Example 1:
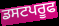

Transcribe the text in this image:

ਡਸਟਪਰੂਫ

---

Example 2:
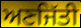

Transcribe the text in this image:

ਅਣਜਿੱਤੀ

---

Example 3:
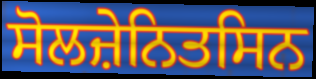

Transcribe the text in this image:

ਸੋਲਜ਼ੇਨਿਤਸਿਨ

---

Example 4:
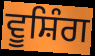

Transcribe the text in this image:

ਵੂਸ਼ਿੰਗ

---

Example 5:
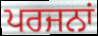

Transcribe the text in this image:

ਪਰਜਨਾਂ